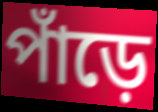
পাঁড়ে